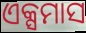
ଏକ୍ସମାସ